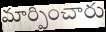
మార్పించారు